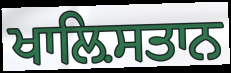
ਖਾਲ਼ਿਸਤਾਨ